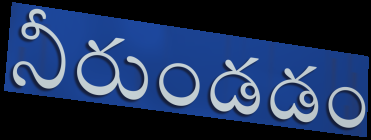
నీరుండడం